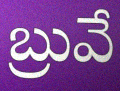
బ్రువే